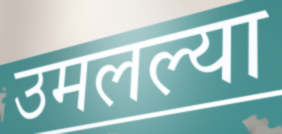
उमलल्या